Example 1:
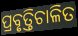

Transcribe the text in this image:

ପ୍ରବୃତ୍ତିଚାଳିତ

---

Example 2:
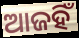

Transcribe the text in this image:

ଆଜହିଁ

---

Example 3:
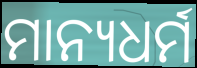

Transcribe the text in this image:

ମାନ୍ୟଧର୍ମ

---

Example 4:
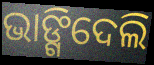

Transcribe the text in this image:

ଭାଙ୍ଗିଦେଲି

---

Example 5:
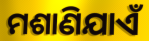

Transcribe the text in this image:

ମଶାଣିଯାଏଁ